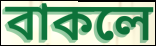
বাকলে